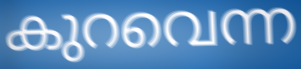
കുറവെന്ന